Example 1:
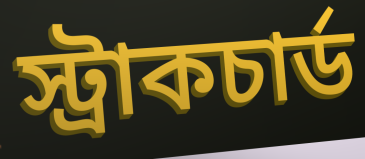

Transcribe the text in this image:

স্ট্রাকচার্ড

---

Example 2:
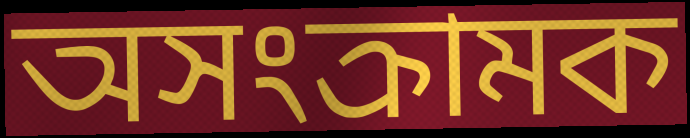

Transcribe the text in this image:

অসংক্রামক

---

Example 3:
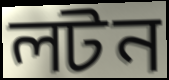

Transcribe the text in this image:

লটন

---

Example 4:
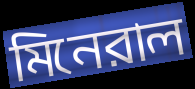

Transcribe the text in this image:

মিনেরাল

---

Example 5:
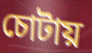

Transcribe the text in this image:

চোটায়